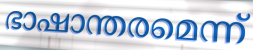
ഭാഷാന്തരമെന്ന്